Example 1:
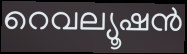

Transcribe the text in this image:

റെവല്യൂഷൻ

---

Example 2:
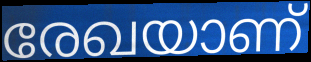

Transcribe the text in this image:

രേഖയാണ്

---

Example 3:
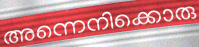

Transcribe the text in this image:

അന്നെനിക്കൊരു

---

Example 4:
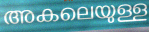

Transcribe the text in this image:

അകലെയുള്ള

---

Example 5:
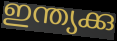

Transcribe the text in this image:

ഇന്ത്യക്കു